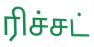
ரிச்சட்